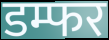
डम्फर